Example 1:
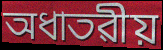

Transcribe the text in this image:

অধাতৱীয়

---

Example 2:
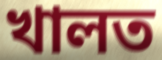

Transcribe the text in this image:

খালত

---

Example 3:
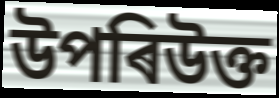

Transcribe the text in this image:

উপৰিউক্ত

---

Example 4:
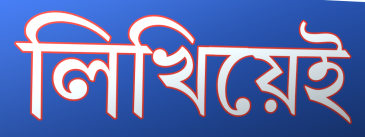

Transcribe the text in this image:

লিখিয়েই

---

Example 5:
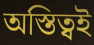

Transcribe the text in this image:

অস্তিত্বই